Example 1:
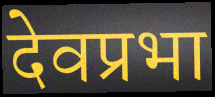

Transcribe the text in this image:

देवप्रभा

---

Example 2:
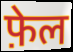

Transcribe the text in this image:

फ़ेल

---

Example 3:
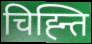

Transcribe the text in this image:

चिह्न्ति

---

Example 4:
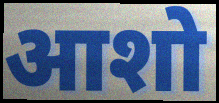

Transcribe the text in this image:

आशो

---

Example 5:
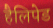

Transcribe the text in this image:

हैलिपेड